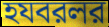
হযবরলর